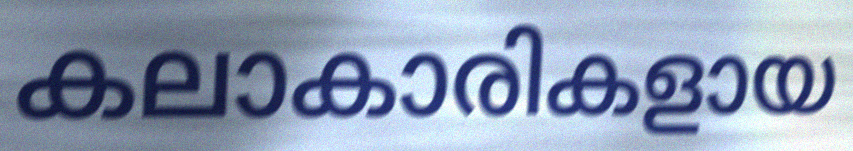
കലാകാരികളായ